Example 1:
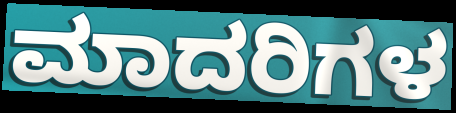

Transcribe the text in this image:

ಮಾದರಿಗಳ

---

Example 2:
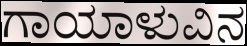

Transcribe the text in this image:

ಗಾಯಾಳುವಿನ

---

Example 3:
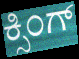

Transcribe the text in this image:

ಕ್ಸಿಂಗ್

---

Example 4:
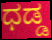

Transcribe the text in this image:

ಧಡ್ಡ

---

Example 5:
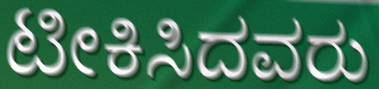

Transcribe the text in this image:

ಟೀಕಿಸಿದವರು